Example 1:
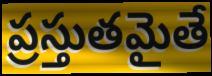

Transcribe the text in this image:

ప్రస్తుతమైతే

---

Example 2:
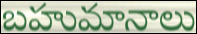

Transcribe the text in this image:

బహుమానాలు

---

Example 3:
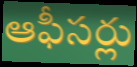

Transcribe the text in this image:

ఆఫీసర్లు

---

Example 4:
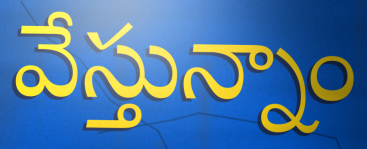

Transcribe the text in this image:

వేస్తున్నాం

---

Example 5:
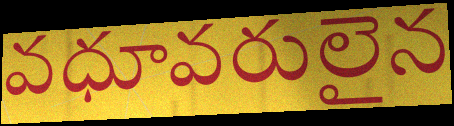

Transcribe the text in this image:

వధూవరులైన